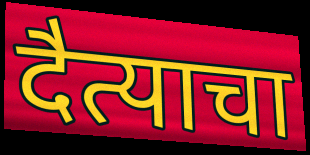
दैत्याचा